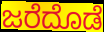
ಜರೆದೊಡೆ